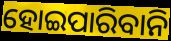
ହୋଇପାରିବାନି